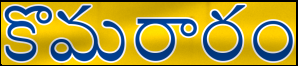
కొమరారం